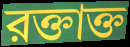
রক্তাক্ত